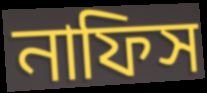
নাফিস